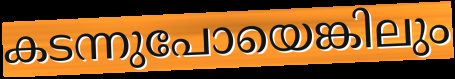
കടന്നുപോയെങ്കിലും